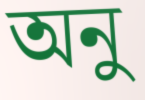
অনু